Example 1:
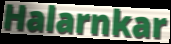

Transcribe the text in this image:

Halarnkar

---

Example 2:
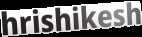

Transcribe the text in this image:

hrishikesh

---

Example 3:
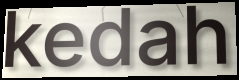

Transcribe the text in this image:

kedah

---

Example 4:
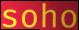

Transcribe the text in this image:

soho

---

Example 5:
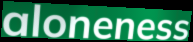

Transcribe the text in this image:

aloneness